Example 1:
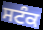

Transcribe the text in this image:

ਸਟੰਕ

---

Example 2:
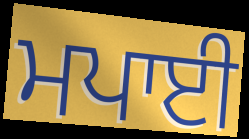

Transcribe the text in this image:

ਮਪਾਈ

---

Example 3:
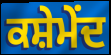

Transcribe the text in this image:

ਕਸ਼ੇਮੇਂਦ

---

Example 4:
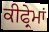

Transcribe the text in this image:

ਕੀਫ੍ਰੇਮਾਂ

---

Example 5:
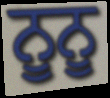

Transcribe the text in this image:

ਨੂਨੂ